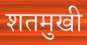
शतमुखी